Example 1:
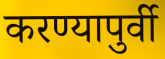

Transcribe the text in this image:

करण्यापुर्वी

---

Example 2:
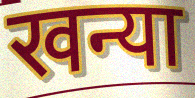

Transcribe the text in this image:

खन्या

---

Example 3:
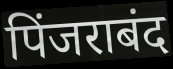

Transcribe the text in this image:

पिंजराबंद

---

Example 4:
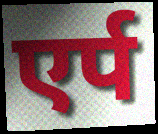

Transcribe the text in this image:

एर्प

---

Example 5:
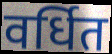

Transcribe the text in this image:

वर्धित